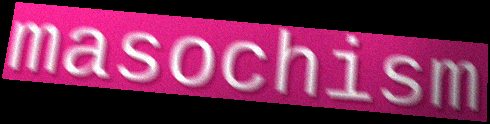
masochism